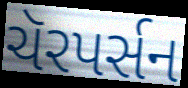
ચૅરપર્સન